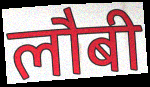
लौबी